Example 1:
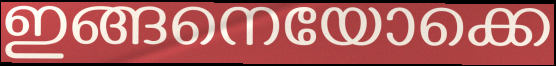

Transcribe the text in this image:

ഇങ്ങനെയോക്കെ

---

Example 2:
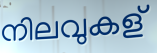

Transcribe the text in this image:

നിലവുകള്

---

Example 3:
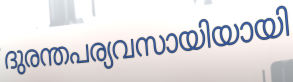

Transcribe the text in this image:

ദുരന്തപര്യവസായിയായി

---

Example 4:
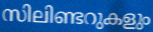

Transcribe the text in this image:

സിലിണ്ടറുകളും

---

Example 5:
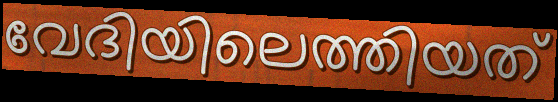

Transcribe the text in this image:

വേദിയിലെത്തിയത്